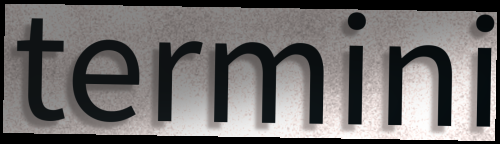
termini